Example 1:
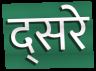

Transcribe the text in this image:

द्सरे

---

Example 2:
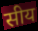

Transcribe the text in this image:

सीय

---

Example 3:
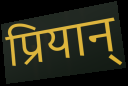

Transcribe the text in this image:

प्रियान्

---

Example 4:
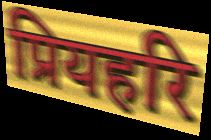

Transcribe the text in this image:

प्रियहरि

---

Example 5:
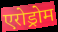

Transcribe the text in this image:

एरोड्रोम